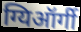
ग्यिऑर्गी